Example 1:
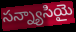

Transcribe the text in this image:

సన్న్యాసియై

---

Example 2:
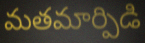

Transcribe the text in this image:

మతమార్పిడి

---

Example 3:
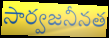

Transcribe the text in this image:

సార్వజనీనత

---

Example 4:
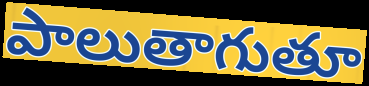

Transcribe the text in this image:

పాలుతాగుతూ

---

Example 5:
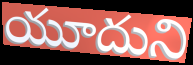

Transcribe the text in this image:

యూదుని